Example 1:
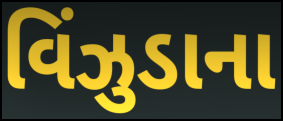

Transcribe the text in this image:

વિંઝુડાના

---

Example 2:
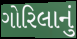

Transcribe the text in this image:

ગોરિલાનું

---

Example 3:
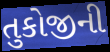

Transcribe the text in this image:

તુકોજીની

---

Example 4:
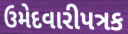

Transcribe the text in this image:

ઉમેદવારીપત્રક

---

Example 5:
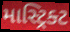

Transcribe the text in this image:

માસ્ટ્રિક્ટ